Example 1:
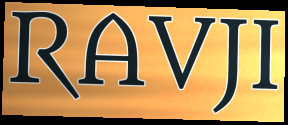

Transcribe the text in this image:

RAVJI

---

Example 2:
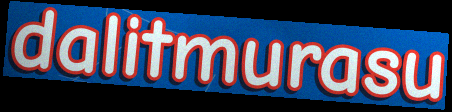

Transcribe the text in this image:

dalitmurasu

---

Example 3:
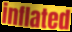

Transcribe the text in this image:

inflated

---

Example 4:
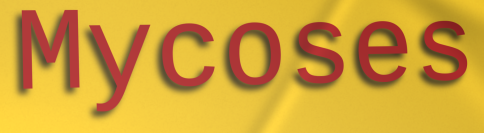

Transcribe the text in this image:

Mycoses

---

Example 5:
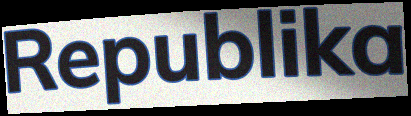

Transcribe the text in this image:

Republika